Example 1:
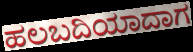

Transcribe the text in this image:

ಹಲಬದಿಯಾದಾಗ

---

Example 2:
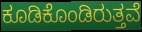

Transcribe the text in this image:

ಕೂಡಿಕೊಂಡಿರುತ್ತವೆ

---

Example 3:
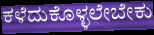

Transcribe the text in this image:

ಕಳೆದುಕೊಳ್ಳಲೇಬೇಕು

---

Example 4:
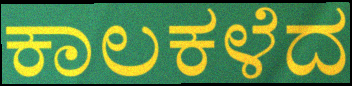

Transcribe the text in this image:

ಕಾಲಕಳೆದ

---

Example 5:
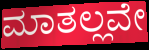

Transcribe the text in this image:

ಮಾತಲ್ಲವೇ